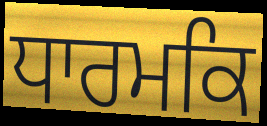
ਧਾਰਮਕਿ